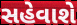
સહેવાશે